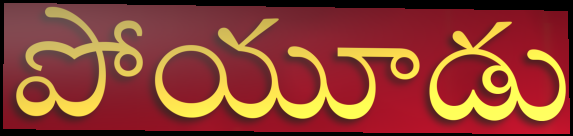
పోయూడు